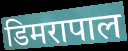
डिमरापाल